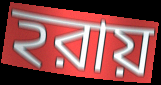
হরায়